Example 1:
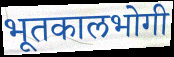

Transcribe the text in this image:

भूतकालभोगी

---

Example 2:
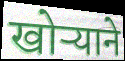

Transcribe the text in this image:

खोऱ्याने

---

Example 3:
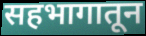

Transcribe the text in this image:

सहभागातून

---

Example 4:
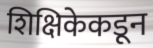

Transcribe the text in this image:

शिक्षिकेकडून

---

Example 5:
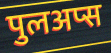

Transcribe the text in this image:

पुलअप्स